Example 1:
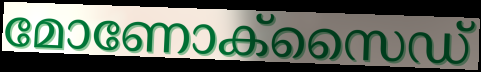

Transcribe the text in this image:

മോണോക്സൈഡ്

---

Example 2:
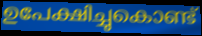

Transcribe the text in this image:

ഉപേക്ഷിച്ചുകൊണ്ട്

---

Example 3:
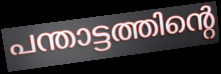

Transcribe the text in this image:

പന്താട്ടത്തിന്റെ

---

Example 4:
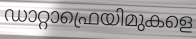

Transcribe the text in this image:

ഡാറ്റാഫ്രെയിമുകളെ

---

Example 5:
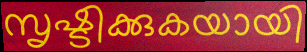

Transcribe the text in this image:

സൃഷ്ടിക്കുകയായി